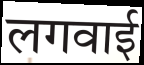
लगवाई